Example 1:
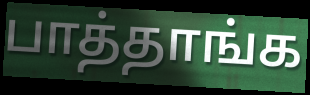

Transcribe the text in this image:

பாத்தாங்க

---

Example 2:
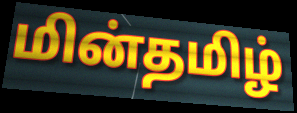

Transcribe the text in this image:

மின்தமிழ்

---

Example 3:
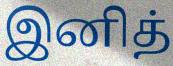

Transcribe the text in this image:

இனித்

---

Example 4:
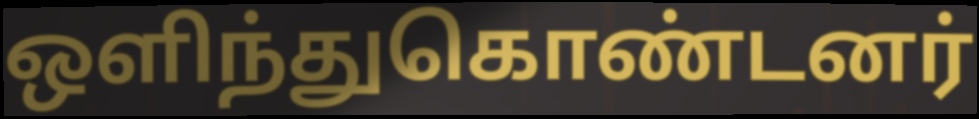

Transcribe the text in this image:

ஒளிந்துகொண்டனர்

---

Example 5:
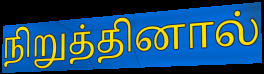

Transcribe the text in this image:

நிறுத்தினால்